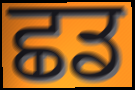
ਛਡ